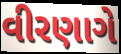
વીરણાગે